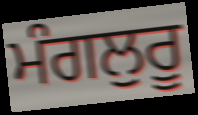
ਮੰਗਲੁਰੂ